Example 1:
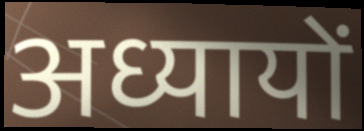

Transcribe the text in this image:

अध्यायों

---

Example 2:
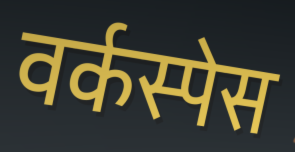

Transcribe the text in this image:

वर्कस्पेस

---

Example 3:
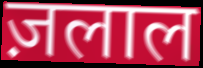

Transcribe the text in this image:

ज़लाल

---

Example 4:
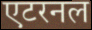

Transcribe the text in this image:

एटरनल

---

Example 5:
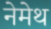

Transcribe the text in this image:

नेमेथ